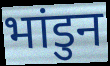
भांडुन